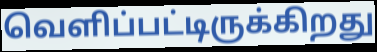
வெளிப்பட்டிருக்கிறது